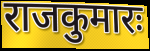
राजकुमारः